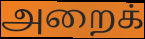
அறைக்